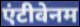
एंटीवेनम